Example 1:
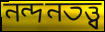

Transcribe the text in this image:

নন্দনতত্ত্ব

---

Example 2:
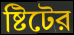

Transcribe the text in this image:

ষ্টিটের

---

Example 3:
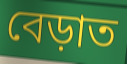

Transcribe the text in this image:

বেড়াত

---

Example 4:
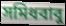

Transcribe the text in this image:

সমিধবাবু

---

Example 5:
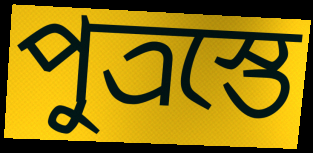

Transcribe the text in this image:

পুত্রস্তে